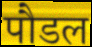
पौडल